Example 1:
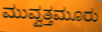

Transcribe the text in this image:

ಮುವ್ವತ್ತಮೂರು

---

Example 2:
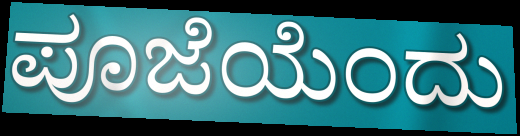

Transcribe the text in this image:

ಪೂಜೆಯೆಂದು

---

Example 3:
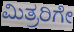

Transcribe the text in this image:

ಮಿತ್ರರಿಗೇ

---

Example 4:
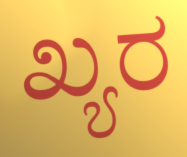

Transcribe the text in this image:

ಖ್ಯರ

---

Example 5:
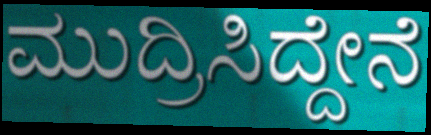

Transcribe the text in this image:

ಮುದ್ರಿಸಿದ್ದೇನೆ